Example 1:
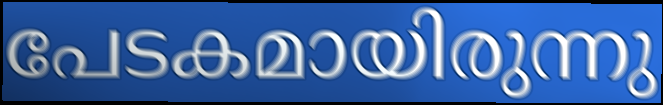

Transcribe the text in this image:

പേടകമായിരുന്നു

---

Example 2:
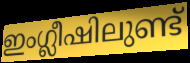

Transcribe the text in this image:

ഇംഗ്ലീഷിലുണ്ട്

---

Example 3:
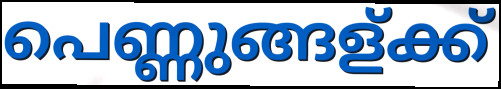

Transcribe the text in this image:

പെണ്ണുങ്ങള്ക്ക്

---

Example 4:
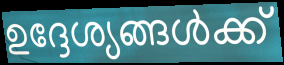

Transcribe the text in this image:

ഉദ്ദേശ്യങ്ങൾക്ക്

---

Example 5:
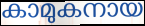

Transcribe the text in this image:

കാമുകനായ